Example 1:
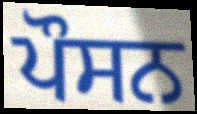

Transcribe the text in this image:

ਪੌਸਨ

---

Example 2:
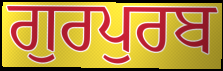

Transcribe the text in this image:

ਗੁਰਪੁਰਬ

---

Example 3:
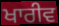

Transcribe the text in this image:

ਖਾਰੀਵ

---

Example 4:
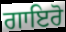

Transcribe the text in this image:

ਗਾਇਰੋ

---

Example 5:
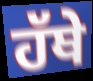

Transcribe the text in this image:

ਹੱਥੇ